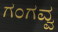
ಗಂಗವ್ವ